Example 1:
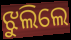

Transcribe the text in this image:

ଝୁଲିଲେ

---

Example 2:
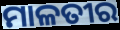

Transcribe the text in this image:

ମାଳତୀର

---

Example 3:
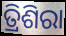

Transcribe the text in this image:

ତ୍ରିଶିରା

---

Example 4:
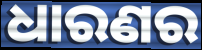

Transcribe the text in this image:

ଧାରଣର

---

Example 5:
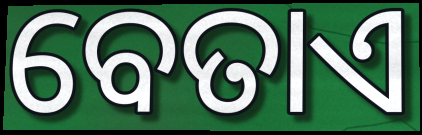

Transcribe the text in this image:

ବେତାଏ